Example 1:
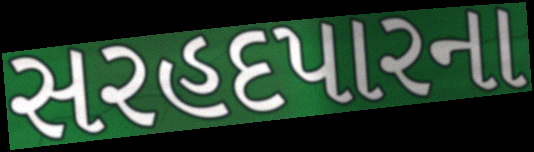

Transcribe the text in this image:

સરહદપારના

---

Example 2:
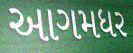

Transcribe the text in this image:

આગમધર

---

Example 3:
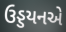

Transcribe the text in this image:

ઉડ્ડયનએ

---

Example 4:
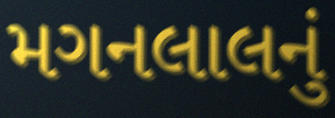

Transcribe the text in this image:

મગનલાલનું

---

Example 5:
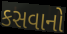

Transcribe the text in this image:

કસવાનો